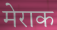
मेराक